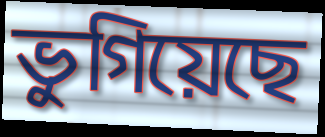
ভুগিয়েছে